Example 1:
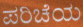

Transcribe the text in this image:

ಪರಿಚೆಯ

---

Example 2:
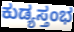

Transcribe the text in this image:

ಕುಡ್ಯಸ್ತಂಭ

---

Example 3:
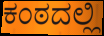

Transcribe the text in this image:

ಕಂಠದಲ್ಲಿ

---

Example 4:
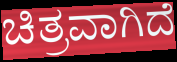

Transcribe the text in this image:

ಚಿತ್ರವಾಗಿದೆ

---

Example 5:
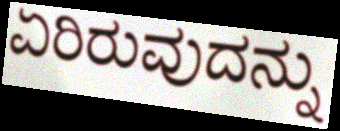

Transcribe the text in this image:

ಏರಿರುವುದನ್ನು